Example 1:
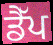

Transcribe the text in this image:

ਡੈੱਪ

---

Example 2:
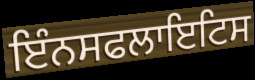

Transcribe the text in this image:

ਇੰਨਸਫਲਾਇਟਿਸ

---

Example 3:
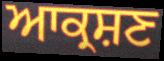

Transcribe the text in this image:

ਆਕ੍ਰਸ਼ਣ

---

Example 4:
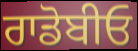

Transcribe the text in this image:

ਰਾਡੋਬੀਓ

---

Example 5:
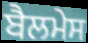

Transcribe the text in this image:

ਬੈਲਮੇਸ